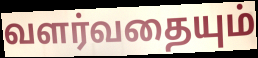
வளர்வதையும்